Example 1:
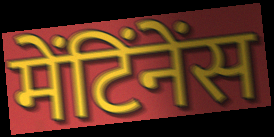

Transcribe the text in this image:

मेंटिंनेंस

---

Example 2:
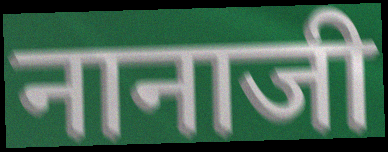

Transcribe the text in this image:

नानाजी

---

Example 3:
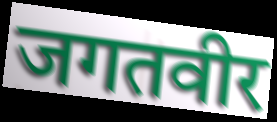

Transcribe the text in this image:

जगतवीर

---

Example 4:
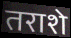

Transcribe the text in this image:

तराशे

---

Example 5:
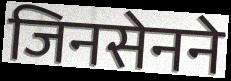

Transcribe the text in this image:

जिनसेनने